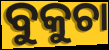
ବୁକୁଚା